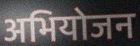
अभियोजन